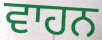
ਵਾਹਨ